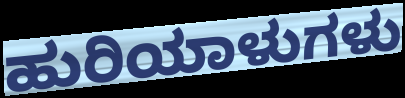
ಹುರಿಯಾಳುಗಳು